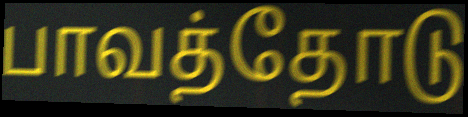
பாவத்தோடு